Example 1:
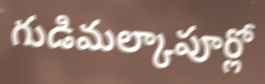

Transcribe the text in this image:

గుడిమల్కాపూర్లో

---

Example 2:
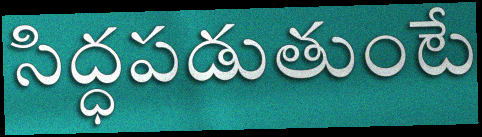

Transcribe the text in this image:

సిద్ధపడుతుంటే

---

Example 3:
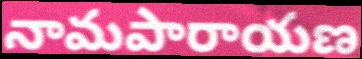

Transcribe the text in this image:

నామపారాయణ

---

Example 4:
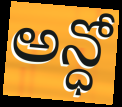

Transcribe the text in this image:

అన్ధో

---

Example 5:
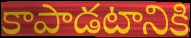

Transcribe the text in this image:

కాపాడటానికి